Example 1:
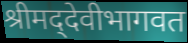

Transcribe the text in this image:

श्रीमद्‌देवीभागवत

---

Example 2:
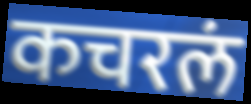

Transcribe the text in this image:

कचरलं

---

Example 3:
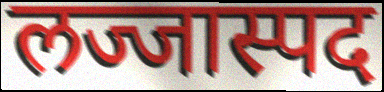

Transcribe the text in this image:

लज्जास्पद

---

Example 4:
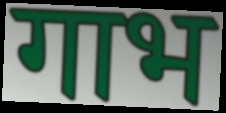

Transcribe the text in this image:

गाभ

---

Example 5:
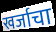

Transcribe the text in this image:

खर्जाचा